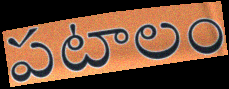
పటాలం